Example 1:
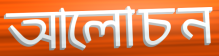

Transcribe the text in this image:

আলোচন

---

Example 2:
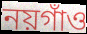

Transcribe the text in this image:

নয়গাঁও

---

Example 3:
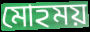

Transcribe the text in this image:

মোহময়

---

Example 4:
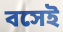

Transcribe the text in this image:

বসেই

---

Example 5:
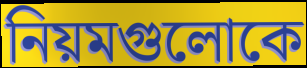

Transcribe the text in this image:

নিয়মগুলোকে